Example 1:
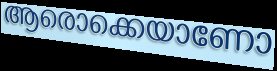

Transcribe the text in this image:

ആരൊക്കെയാണോ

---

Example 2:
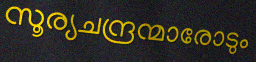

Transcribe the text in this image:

സൂര്യചന്ദ്രന്മാരോടും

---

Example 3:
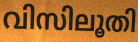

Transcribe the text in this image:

വിസിലൂതി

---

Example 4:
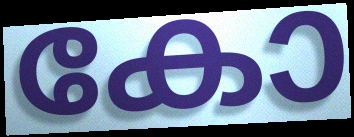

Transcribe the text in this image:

കോ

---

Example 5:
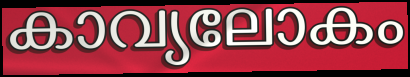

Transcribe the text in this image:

കാവ്യലോകം